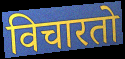
विचारतो